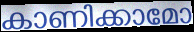
കാണിക്കാമോ